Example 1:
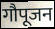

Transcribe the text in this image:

गौपूजन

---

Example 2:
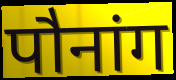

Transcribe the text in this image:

पौनांग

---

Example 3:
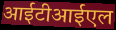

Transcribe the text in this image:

आईटीआईएल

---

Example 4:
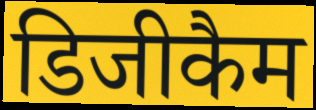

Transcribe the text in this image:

डिजीकैम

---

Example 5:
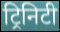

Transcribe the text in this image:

ट्रिनिटी